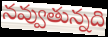
నవ్వుతున్నది